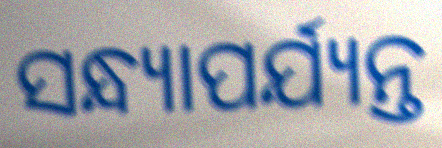
ସନ୍ଧ୍ୟାପର୍ଯ୍ୟନ୍ତ